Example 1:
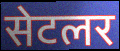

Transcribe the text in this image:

सेटलर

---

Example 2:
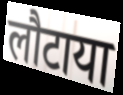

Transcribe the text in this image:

लौटाया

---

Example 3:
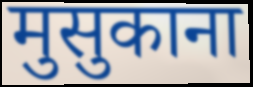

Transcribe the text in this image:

मुसुकाना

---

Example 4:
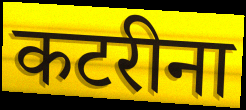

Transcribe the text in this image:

कटरीना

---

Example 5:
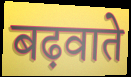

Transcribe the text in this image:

बढ़वाते